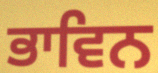
ਭਾਵਿਨ